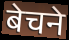
बेचने